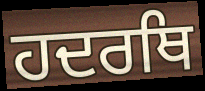
ਹਦਰਥਿ